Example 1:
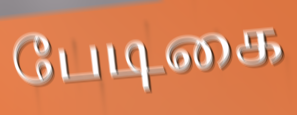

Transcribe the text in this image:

பேடிகை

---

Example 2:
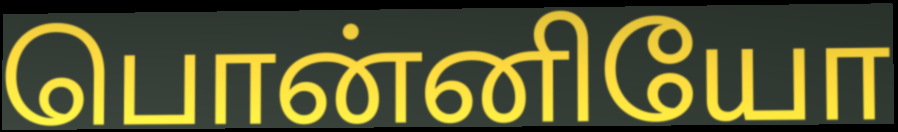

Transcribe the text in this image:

பொன்னியோ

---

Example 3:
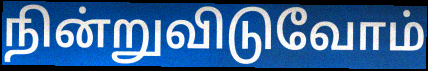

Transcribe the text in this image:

நின்றுவிடுவோம்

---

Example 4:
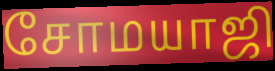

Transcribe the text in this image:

சோமயாஜி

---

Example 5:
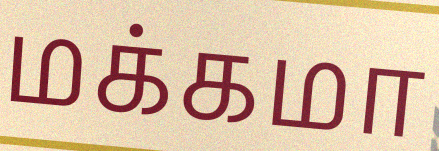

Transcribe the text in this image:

மக்கமா